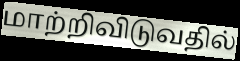
மாற்றிவிடுவதில்